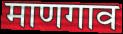
माणगाव